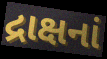
દ્રાક્ષનાં